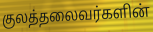
குலத்தலைவர்களின்